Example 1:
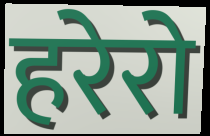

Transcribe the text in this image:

हरेरो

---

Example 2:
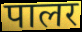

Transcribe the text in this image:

पालर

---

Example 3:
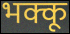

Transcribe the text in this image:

भक्कू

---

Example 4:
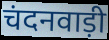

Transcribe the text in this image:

चंदनवाड़ी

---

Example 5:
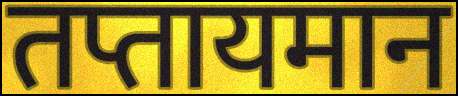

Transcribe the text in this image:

तप्तायमान